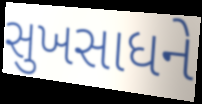
સુખસાધને